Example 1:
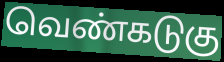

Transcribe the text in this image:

வெண்கடுகு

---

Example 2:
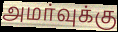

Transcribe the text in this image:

அமர்வுக்கு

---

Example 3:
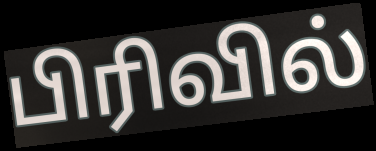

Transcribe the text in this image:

பிரிவில்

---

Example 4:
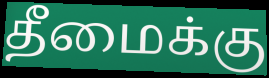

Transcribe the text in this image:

தீமைக்கு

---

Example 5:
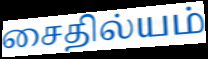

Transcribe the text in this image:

சைதில்யம்